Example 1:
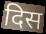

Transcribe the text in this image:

दिस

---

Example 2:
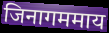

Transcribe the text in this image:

जिनागममाय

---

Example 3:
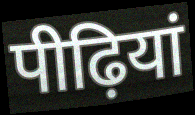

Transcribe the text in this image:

पीढ़ियां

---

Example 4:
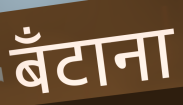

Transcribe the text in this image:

बँटाना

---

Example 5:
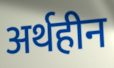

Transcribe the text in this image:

अर्थहीन